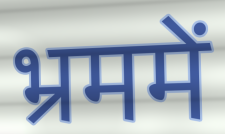
भ्रममें